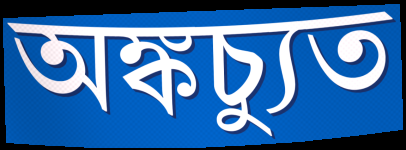
অঙ্কচ্যুত